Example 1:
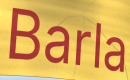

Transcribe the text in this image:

Barla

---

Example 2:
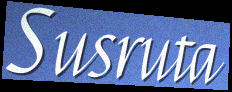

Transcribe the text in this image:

Susruta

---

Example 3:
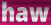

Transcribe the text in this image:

haw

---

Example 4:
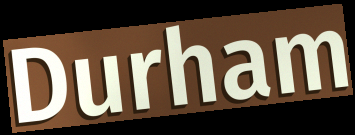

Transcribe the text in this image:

Durham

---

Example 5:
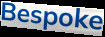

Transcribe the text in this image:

Bespoke